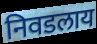
निवडलाय